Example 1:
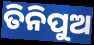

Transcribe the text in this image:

ତିନିପୁଅ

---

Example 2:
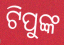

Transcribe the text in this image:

ଟିପୁଙ୍କ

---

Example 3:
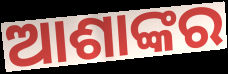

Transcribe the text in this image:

ଆଶାଙ୍କର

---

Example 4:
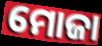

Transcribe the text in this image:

ମୋଜା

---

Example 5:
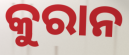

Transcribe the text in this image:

କୁରାନ